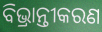
ବିଭ୍ରାନ୍ତୀକରଣ